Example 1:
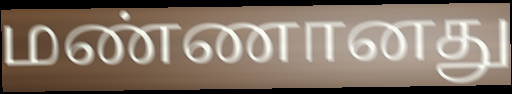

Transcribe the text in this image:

மண்ணானது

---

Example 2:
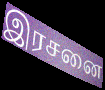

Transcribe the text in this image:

இரசனை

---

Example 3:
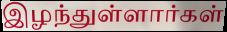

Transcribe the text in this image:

இழந்துள்ளார்கள்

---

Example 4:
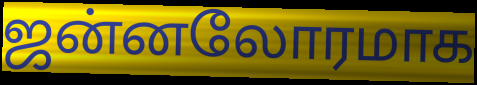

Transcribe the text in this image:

ஜன்னலோரமாக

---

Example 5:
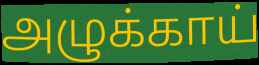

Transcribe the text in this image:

அழுக்காய்